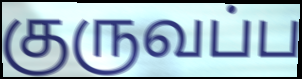
குருவப்ப